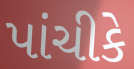
પાંચીકે